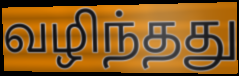
வழிந்தது